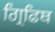
ਗ੍ਰਿਫਿਥ